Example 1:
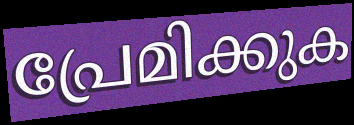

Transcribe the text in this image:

പ്രേമിക്കുക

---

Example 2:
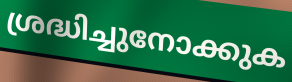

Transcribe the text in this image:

ശ്രദ്ധിച്ചുനോക്കുക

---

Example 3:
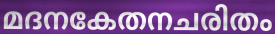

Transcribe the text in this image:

മദനകേതനചരിതം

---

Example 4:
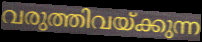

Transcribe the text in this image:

വരുത്തിവയ്ക്കുന്ന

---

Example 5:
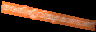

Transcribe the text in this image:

അതിജീവിച്ചുകൊണ്ടാണ്